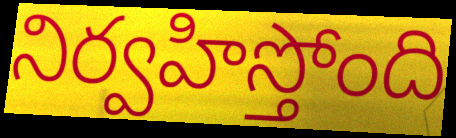
నిర్వహిస్తోంది